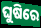
ଘୁଷିରେ